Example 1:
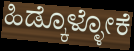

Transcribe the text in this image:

ಹಿಡ್ಕೊಳ್ಳೋಕೆ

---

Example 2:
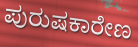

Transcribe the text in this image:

ಪುರುಷಕಾರೇಣ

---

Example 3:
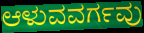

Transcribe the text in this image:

ಆಳುವವರ್ಗವು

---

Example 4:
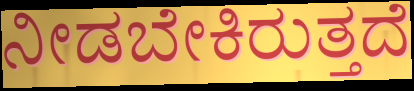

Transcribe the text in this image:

ನೀಡಬೇಕಿರುತ್ತದೆ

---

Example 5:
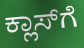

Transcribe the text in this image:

ಕ್ಲಾಸ್‌ಗೆ